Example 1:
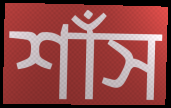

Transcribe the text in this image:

শাঁস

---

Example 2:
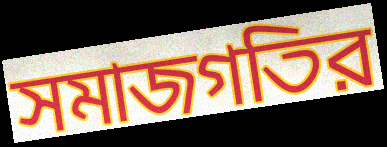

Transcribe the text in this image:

সমাজগতির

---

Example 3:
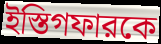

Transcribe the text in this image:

ইস্তিগফারকে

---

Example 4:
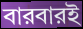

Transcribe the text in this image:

বারবারই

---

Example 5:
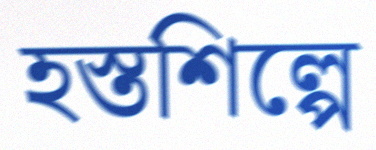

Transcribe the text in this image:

হস্তশিল্পে